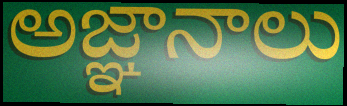
అజ్ఞానాలు